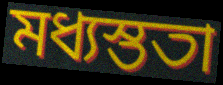
মধ্যস্ততা